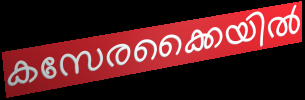
കസേരക്കൈയിൽ